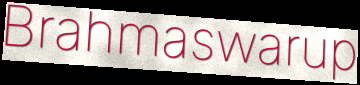
Brahmaswarup